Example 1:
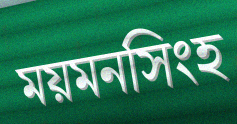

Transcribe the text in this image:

ময়মনসিংহ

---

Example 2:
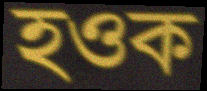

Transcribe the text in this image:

হওক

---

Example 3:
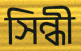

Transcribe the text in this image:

সিন্ধী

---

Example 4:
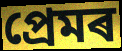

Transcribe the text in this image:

প্ৰেমৰ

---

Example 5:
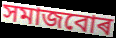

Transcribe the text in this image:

সমাজবোৰ